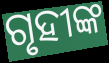
ଗୃହୀଙ୍କ